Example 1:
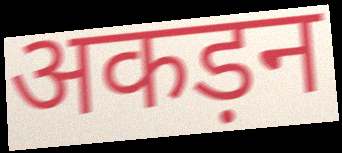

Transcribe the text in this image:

अकड़न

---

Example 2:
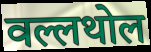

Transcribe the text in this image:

वल्लथोल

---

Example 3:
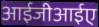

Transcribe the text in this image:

आईजीआईए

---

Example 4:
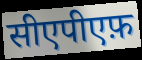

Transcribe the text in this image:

सीएपीएफ़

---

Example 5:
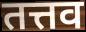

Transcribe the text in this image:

तत्तव